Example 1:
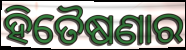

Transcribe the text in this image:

ହିତୈଷଣାର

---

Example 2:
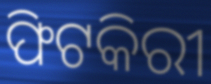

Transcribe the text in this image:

ଫିଟକିରୀ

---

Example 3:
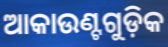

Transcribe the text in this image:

ଆକାଉଣ୍ଟଗୁଡ଼ିକ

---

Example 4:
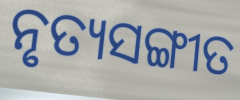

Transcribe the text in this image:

ନୃତ୍ୟସଙ୍ଗୀତ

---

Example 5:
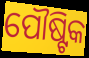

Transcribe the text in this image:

ପୌଷ୍ଟିକ